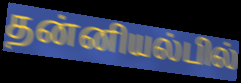
தன்னியல்பில்